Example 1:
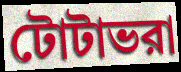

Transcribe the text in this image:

টোটাভরা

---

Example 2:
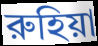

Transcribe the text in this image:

রুহিয়া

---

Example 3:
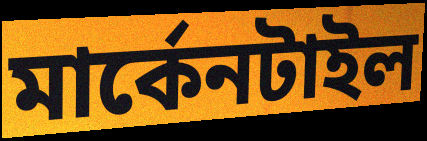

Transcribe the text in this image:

মার্কেনটাইল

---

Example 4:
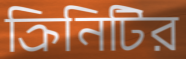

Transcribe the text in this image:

ক্রিনিটির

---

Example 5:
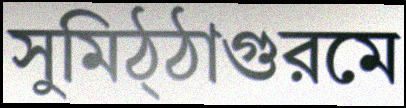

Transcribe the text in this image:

সুমিঠ্ঠাগুরমে